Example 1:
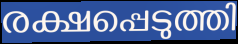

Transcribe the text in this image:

രക്ഷപ്പെടുത്തി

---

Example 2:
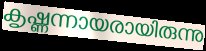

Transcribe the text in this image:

കൃഷ്ണന്നായരായിരുന്നു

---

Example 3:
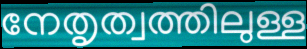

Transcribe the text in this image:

നേതൃത്വത്തിലുള്ള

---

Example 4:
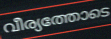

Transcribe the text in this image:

വീര്യത്തോടെ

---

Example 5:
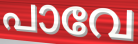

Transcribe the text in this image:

പാവേ